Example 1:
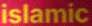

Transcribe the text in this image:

islamic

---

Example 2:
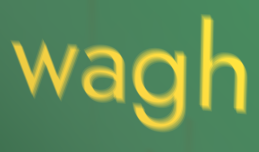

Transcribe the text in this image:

wagh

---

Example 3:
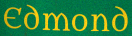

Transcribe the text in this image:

Edmond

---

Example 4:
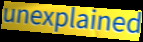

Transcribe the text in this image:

unexplained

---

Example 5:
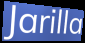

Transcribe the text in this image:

Jarilla